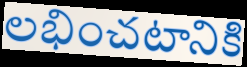
లభించటానికి